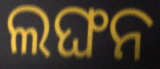
ଲଙ୍ଘନ